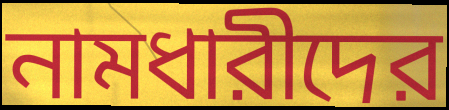
নামধারীদের